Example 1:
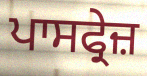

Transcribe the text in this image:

ਪਾਸਫ੍ਰੇਜ਼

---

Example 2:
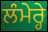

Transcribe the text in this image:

ਲੰਮੇਰ੍ਹੇ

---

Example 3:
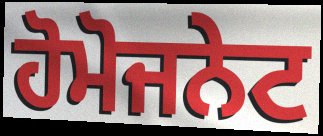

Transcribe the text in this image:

ਹੋਮੋਜਨੇਟ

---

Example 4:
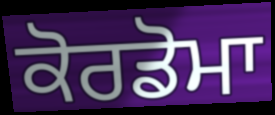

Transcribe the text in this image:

ਕੋਰਡੋਮਾ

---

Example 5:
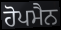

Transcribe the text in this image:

ਹੋਪਮੈਨ